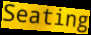
Seating